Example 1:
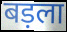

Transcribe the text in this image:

बड़ला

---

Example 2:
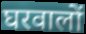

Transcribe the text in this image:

घरवालों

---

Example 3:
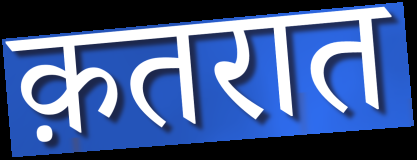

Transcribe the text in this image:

क़तरात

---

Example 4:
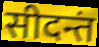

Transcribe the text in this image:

सीदन्तं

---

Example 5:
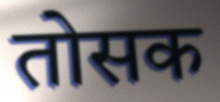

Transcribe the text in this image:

तोसक